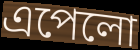
এপেলো